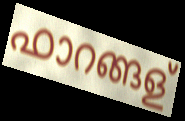
ഫാറങ്ങള്